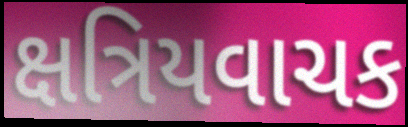
ક્ષત્રિયવાચક